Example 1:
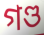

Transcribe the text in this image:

গণ্ড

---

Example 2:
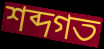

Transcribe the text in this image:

শব্দগত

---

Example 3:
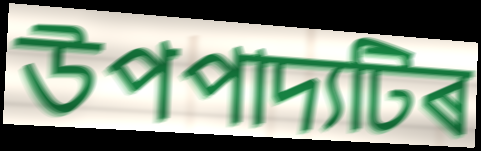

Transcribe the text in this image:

উপপাদ্যটিৰ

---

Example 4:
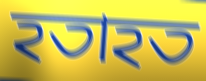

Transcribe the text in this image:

হতাহত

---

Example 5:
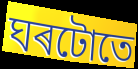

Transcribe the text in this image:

ঘৰটোতে